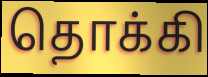
தொக்கி